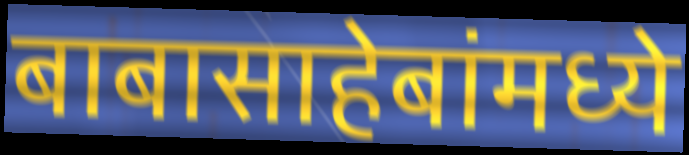
बाबासाहेबांमध्ये